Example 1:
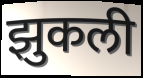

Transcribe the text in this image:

झुकली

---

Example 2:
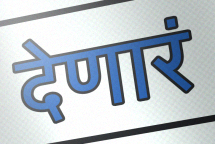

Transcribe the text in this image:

देणारं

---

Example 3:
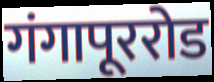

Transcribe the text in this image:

गंगापूररोड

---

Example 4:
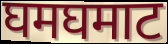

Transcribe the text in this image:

घमघमाट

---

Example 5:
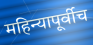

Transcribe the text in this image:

महिन्यापूर्वीच